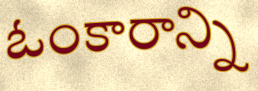
ఓంకారాన్ని